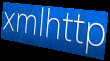
xmlhttp